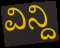
ವಿನ್ದಿ